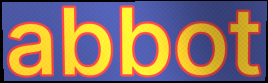
abbot